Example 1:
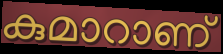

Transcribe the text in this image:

കുമാറാണ്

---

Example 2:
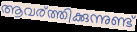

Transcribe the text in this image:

ആവര്ത്തിക്കുന്നുണ്ട്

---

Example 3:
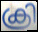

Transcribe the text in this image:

ക്രി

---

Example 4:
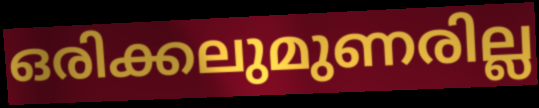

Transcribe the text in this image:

ഒരിക്കലുമുണരില്ല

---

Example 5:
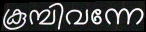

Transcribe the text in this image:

കൂമ്പിവന്നേ